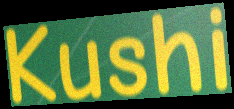
Kushi